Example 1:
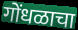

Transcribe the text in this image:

गोंधळाचा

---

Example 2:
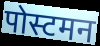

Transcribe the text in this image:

पोस्टमन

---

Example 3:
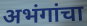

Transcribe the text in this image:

अभंगांचा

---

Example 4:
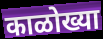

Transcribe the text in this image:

काळोख्या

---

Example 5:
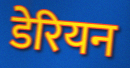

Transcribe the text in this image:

डेरियन